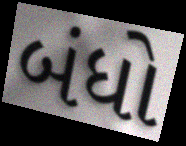
બંધો